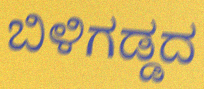
ಬಿಳಿಗಡ್ಡದ